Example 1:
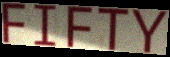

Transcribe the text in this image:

FIFTY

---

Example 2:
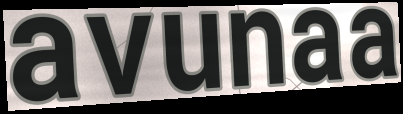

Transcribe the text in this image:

avunaa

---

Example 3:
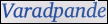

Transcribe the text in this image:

Varadpande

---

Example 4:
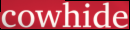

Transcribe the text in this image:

cowhide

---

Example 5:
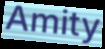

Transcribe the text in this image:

Amity